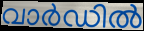
വാർഡിൽ